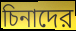
চিনাদের